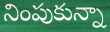
నింపుకున్నా